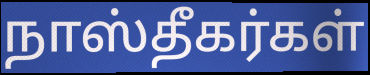
நாஸ்தீகர்கள்